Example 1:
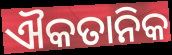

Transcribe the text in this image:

ଐକତାନିକ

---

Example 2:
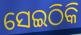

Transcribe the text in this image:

ସେଇଠିକି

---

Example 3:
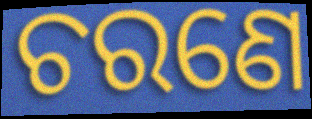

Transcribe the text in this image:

ଚରଣେ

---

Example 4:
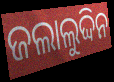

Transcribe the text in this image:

ଜଲାଲୁଦ୍ଦିନ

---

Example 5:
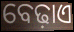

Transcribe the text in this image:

ବେଢ଼ାଏ